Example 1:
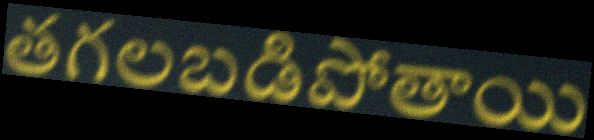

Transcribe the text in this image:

తగలబడిపోతాయి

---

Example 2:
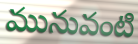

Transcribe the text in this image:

మునువంటి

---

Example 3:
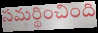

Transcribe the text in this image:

సమర్థించింది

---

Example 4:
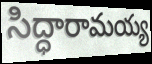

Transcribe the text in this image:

సిద్ధారామయ్య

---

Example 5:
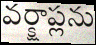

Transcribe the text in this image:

వర్క్షాప్లను